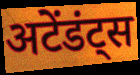
अटेंडंट्स